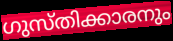
ഗുസ്തിക്കാരനും